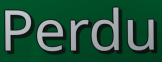
Perdu